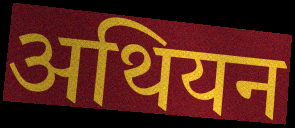
अथियन